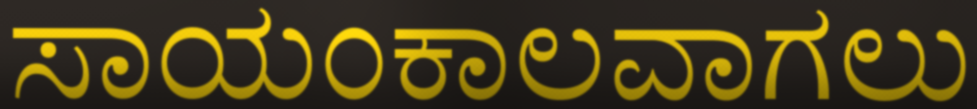
ಸಾಯಂಕಾಲವಾಗಲು